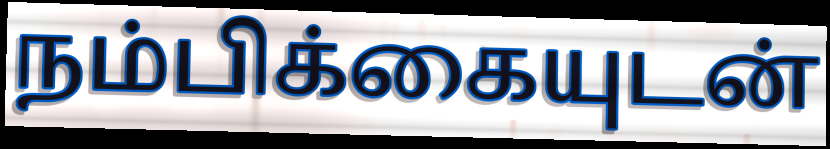
நம்பிக்கையுடன்